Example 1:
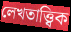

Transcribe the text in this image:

লেখতাত্ত্বিক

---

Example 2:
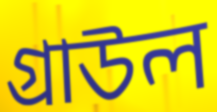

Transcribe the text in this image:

গ্রাউল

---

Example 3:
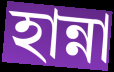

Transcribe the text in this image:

হান্না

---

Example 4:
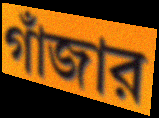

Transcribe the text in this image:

গাঁজার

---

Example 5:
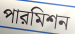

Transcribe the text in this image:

পারমিশন